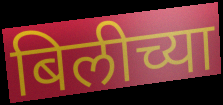
बिलीच्या